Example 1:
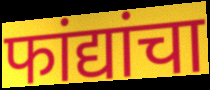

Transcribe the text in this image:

फांद्यांचा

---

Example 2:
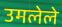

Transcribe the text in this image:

उमलेले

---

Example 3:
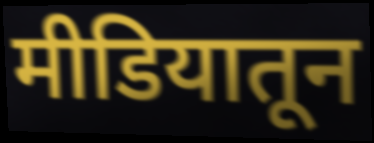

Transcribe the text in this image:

मीडियातून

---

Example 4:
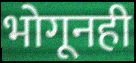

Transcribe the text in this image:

भोगूनही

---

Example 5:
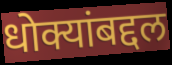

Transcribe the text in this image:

धोक्यांबद्दल